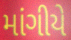
માંગીયે